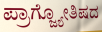
ಪ್ರಾಗ್ಜ್ಯೋತಿಷದ